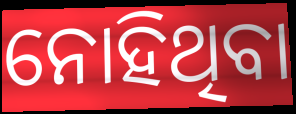
ନୋହିଥିବା